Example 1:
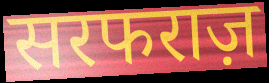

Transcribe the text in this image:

सरफराज़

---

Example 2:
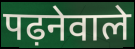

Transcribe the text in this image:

पढ़नेवाले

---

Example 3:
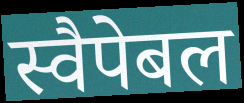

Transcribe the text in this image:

स्वैपेबल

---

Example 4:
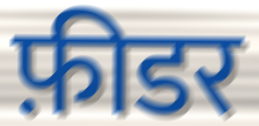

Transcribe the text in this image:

फ़ीडर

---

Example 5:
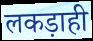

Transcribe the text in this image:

लकड़ाही